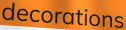
decorations